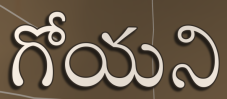
గోయని